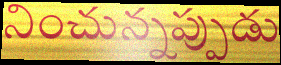
నించున్నప్పుడు